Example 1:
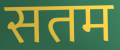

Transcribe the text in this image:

सतम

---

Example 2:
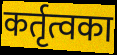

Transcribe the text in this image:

कर्तृत्वका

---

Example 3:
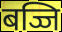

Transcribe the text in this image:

बज्जि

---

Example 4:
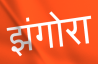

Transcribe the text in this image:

झंगोरा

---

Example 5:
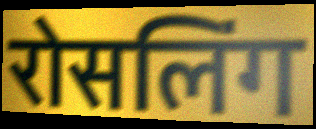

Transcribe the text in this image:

रोसलिंग